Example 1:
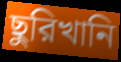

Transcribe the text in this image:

ছুরিখানি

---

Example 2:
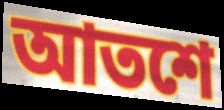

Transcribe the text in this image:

আতশে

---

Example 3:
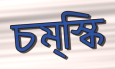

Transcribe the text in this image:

চম্‌স্কি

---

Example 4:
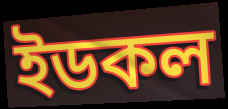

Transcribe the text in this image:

ইডকল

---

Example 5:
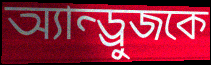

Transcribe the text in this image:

অ্যান্ড্রুজকে